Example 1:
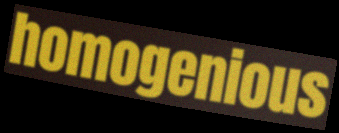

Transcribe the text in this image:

homogenious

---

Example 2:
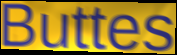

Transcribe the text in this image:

Buttes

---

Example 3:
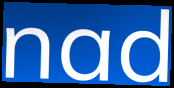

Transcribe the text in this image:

nad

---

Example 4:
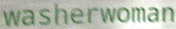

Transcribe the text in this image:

washerwoman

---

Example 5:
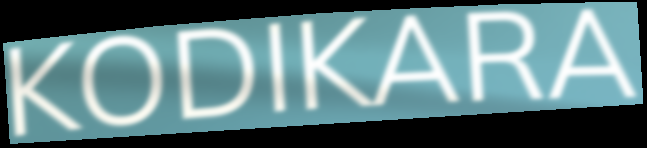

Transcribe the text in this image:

KODIKARA